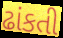
ઢાંકતી